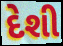
દેશી